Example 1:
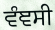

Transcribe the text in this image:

ਵੰਞਸੀ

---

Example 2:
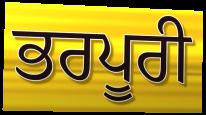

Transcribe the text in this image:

ਭਰਪੂਰੀ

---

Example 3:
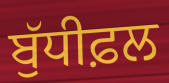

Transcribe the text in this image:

ਬੁੱਧੀਫ਼ਲ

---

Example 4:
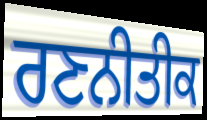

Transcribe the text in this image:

ਰਣਨੀਤੀਕ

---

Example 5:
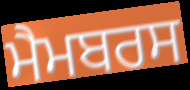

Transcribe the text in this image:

ਮੈਮਬਰਸ